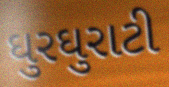
ઘુરઘુરાટી